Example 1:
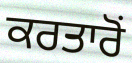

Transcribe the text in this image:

ਕਰਤਾਰੋਂ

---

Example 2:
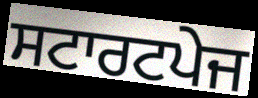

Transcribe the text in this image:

ਸਟਾਰਟਪੇਜ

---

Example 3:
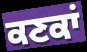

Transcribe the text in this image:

ਕਣਕਾਂ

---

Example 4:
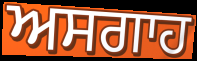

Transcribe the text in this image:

ਅਸਗਾਹ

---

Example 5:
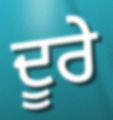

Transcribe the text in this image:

ਦੂਰੇ